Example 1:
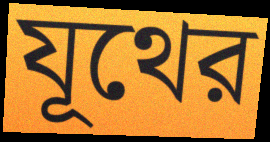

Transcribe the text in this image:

যূথের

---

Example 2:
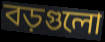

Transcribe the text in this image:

বড়গুলো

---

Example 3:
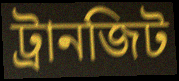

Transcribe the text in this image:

ট্রানজিট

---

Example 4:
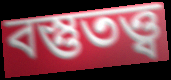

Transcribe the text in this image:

বস্তুতত্ত্ব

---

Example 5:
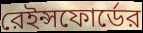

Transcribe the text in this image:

রেইন্সফোর্ডের